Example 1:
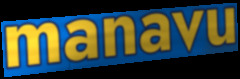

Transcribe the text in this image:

manavu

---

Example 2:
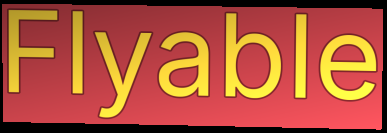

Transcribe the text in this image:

Flyable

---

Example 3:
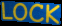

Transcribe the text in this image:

LOCK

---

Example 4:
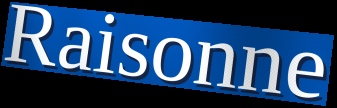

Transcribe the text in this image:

Raisonne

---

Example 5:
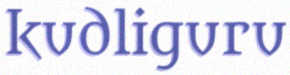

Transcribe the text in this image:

kudliguru